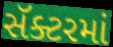
સૅક્ટરમાં